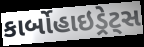
કાર્બોહાઇડ્રેટ્સ